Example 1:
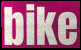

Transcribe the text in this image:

bike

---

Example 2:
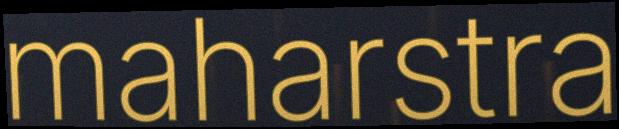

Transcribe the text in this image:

maharstra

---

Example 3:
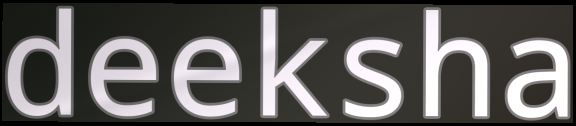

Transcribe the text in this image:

deeksha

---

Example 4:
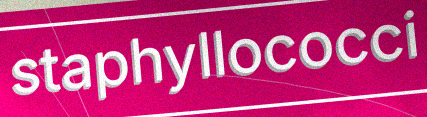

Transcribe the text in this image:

staphyllococci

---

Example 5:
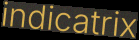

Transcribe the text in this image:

indicatrix